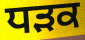
ਧਡ਼ਕ